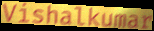
Vishalkumar